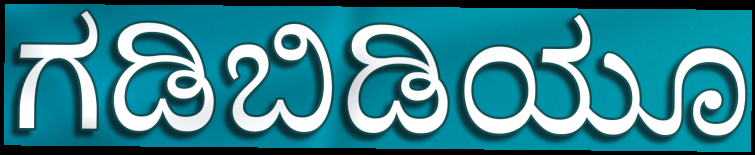
ಗಡಿಬಿಡಿಯೂ